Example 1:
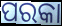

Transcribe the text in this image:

ପରକା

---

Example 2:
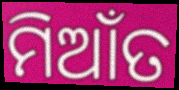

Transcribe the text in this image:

ମିଆଁତ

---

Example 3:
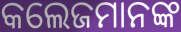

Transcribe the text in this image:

କଲେଜମାନଙ୍କ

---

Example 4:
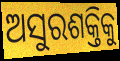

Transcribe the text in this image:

ଅସୁରଶକ୍ତିକୁ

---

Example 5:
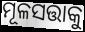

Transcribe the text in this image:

ମୂଳସତ୍ତାକୁ